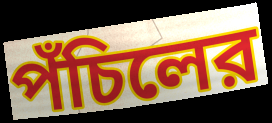
পঁচিলের